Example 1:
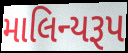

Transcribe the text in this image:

માલિન્યરૂપ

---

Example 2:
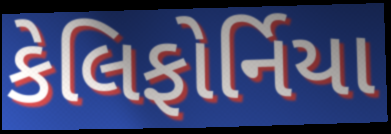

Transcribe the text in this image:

કેલિફોર્નિયા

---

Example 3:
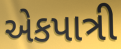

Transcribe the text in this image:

એકપાત્રી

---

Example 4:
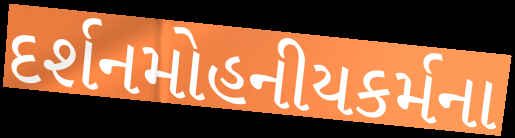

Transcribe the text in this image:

દર્શનમોહનીયકર્મના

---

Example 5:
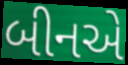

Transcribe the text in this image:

બીનએ